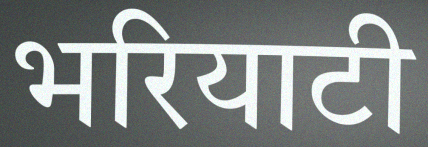
भरियाटी